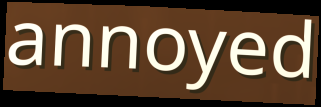
annoyed